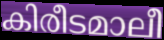
കിരീടമാലീ